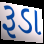
રૂડા